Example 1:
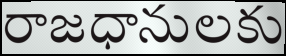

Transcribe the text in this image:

రాజధానులకు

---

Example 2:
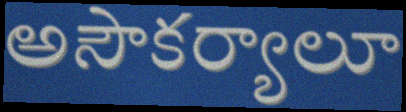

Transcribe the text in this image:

అసౌకర్యాలూ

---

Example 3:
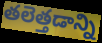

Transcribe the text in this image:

తలెత్తడాన్ని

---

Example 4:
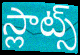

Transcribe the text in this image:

స్లాట్స్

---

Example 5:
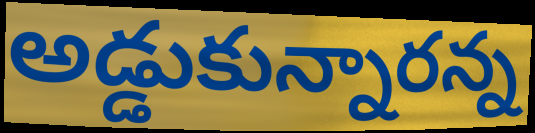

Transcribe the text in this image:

అడ్డుకున్నారన్న